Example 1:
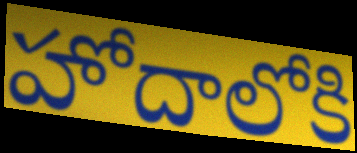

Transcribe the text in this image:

హోదాలోకి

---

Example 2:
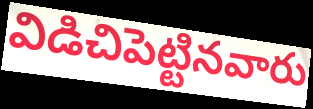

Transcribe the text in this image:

విడిచిపెట్టినవారు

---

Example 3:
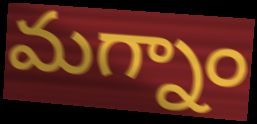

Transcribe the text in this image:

మగ్నాం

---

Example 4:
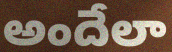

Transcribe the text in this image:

అందేలా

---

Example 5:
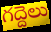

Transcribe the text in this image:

గద్దెలు